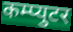
कम्प्युटर